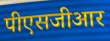
पीएसजीआर